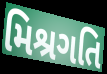
મિશ્રગતિ